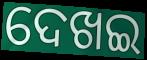
ଦେଖଇ